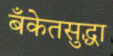
बँकेतसुद्धा